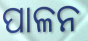
ପାଳନ